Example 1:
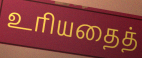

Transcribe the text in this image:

உரியதைத்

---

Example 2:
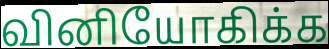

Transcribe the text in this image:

வினியோகிக்க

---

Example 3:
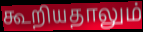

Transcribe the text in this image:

கூறியதாலும்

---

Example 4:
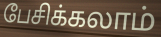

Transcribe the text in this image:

பேசிக்கலாம்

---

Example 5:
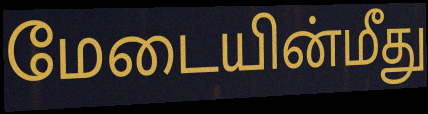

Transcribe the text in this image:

மேடையின்மீது